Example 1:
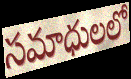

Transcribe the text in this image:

సమాధులలో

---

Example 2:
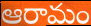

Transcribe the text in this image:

ఆరామం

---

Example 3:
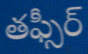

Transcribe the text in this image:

తఫ్సీర్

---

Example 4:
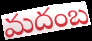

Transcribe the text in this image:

మదంబ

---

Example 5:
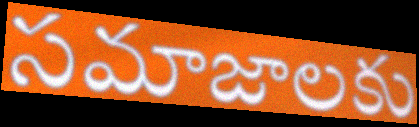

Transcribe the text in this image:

సమాజాలకు